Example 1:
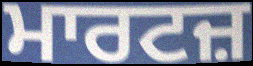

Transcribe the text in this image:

ਮਾਰਟਜ਼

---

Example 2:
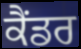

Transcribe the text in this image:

ਕੈਂਡਰ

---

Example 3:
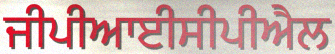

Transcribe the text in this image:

ਜੀਪੀਆਈਸੀਪੀਐਲ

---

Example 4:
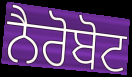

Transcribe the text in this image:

ਨੈਰੋਬੋਟ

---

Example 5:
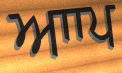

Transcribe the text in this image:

ਆਾਪ